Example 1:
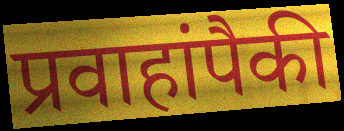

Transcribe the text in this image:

प्रवाहांपैकी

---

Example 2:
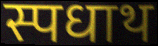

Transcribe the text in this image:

स्पधाथ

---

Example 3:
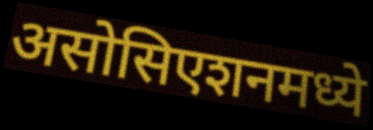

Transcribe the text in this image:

असोसिएशनमध्ये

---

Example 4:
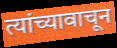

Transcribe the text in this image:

त्यांच्यावाचून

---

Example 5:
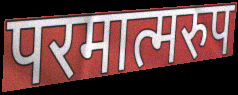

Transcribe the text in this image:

परमात्मरुप